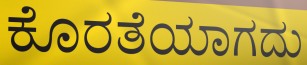
ಕೊರತೆಯಾಗದು